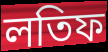
লতিফ